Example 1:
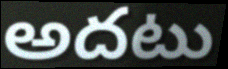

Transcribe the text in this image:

అదటు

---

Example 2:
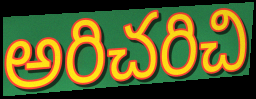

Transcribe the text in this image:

అరిచరిచి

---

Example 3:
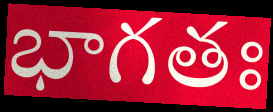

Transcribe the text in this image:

భాగతః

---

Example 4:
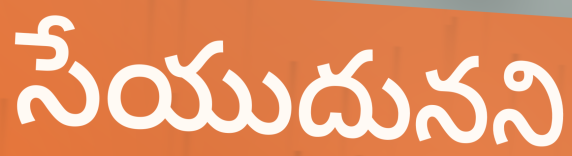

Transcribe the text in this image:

సేయుదునని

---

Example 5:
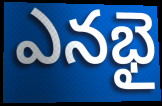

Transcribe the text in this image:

ఎనభై